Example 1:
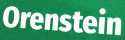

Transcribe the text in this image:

Orenstein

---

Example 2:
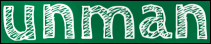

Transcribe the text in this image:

unman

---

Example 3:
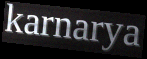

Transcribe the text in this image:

karnarya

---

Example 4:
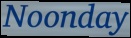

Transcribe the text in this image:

Noonday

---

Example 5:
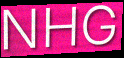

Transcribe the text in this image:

NHG